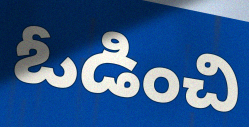
ఓడించి